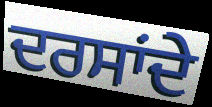
ਦਰਸਾਂਦੇ